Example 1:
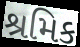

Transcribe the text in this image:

શ્રમિક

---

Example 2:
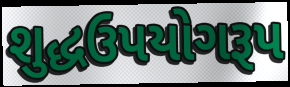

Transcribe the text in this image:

શુદ્ધઉપયોગરૂપ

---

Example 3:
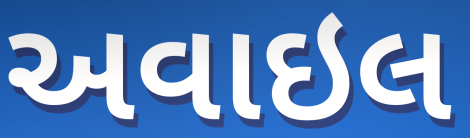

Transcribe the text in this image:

અવાઇલ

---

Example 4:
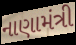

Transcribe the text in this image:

નાણામંત્રી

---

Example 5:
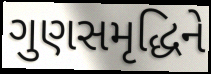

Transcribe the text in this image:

ગુણસમૃદ્ધિને